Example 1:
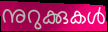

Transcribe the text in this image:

നുറുക്കുകൾ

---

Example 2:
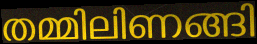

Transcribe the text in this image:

തമ്മിലിണങ്ങി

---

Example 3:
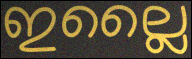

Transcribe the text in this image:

ഇല്ലൈ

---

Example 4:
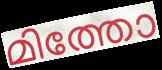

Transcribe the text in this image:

മിത്തോ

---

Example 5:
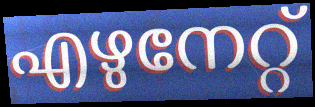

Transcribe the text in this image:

എഴുനേറ്റ്